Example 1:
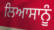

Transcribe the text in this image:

ਲਿਆਸਾਨੂੰ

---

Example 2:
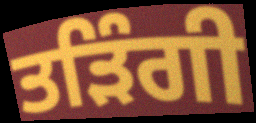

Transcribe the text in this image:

ਤੜਿੰਗੀ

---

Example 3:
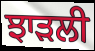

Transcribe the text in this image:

ਝਾੜਲੀ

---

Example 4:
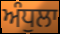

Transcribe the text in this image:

ਅੰਧੁਲਾ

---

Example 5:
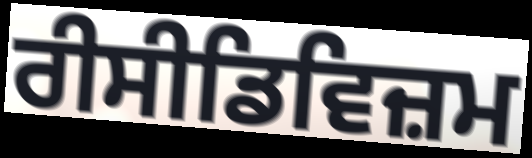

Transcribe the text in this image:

ਰੀਸੀਡਿਵਿਜ਼ਮ